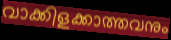
വാക്കിളക്കാത്തവനും